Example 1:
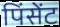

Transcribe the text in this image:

पिंसेंट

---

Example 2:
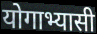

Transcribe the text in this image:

योगाभ्यासी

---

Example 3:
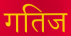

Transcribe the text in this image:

गतिज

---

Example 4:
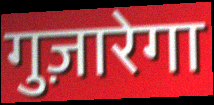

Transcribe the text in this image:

गुज़ारेगा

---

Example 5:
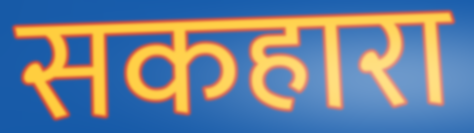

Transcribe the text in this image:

सकहारा